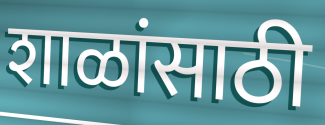
शाळांसाठी